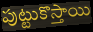
పుట్టుకొస్తాయి